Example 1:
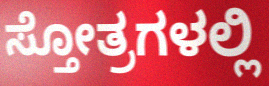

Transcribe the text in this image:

ಸ್ತೋತ್ರಗಳಲ್ಲಿ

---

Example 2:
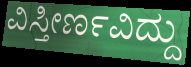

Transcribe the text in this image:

ವಿಸ್ತೀರ್ಣವಿದ್ದು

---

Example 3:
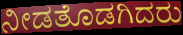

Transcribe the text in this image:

ನೀಡತೊಡಗಿದರು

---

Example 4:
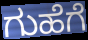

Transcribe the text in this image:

ಗುಹೆಗೆ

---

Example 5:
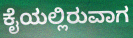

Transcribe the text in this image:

ಕೈಯಲ್ಲಿರುವಾಗ